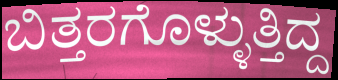
ಬಿತ್ತರಗೊಳ್ಳುತ್ತಿದ್ದ